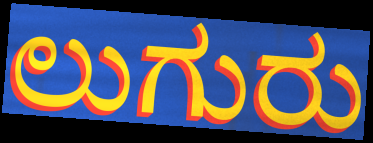
ಲುಗುರು